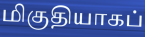
மிகுதியாகப்